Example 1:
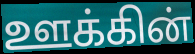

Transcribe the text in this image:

ஊக்கின்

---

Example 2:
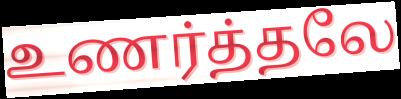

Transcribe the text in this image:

உணர்த்தலே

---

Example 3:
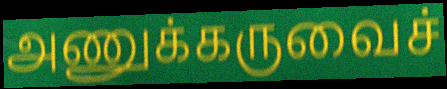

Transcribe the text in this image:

அணுக்கருவைச்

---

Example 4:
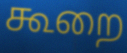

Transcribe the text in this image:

கூறை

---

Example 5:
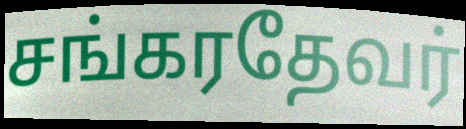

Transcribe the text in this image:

சங்கரதேவர்